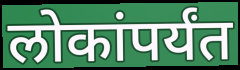
लोकांपर्यंत